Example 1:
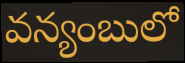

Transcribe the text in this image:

వన్యంబులో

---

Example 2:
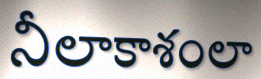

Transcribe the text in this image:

నీలాకాశంలా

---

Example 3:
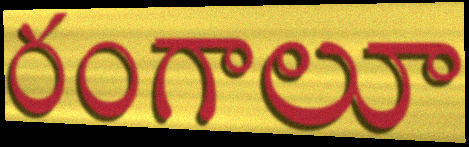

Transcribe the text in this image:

రంగాలూ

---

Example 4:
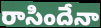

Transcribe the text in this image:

రాసిందేనా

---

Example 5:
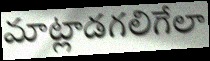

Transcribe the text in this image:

మాట్లాడగలిగేలా